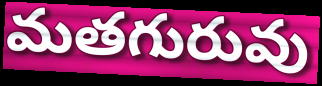
మతగురువు